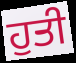
ਹੁਤੀ